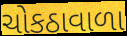
ચોકઠાવાળા